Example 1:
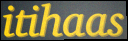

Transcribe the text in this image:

itihaas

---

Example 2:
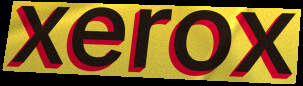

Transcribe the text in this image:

xerox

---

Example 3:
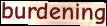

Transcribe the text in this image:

burdening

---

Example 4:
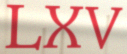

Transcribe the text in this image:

LXV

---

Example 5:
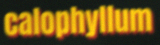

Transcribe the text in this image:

calophyllum